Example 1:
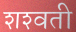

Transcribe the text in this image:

शश्वती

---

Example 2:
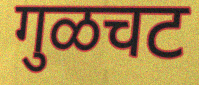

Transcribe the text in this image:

गुळचट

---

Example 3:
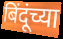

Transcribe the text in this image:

बिंदूंच्या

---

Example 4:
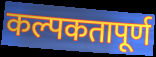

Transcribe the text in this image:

कल्पकतापूर्ण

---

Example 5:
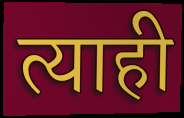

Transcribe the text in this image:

त्याही